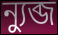
ন্যুব্জ